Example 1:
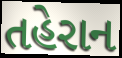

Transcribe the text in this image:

તહેરાન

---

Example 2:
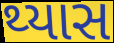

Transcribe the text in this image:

થ્યાસ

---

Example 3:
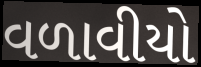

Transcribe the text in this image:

વળાવીયો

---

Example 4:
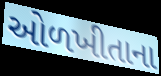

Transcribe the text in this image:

ઓળખીતાના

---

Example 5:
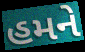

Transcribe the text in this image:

હમને